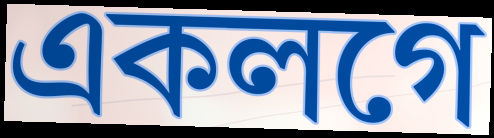
একলগে